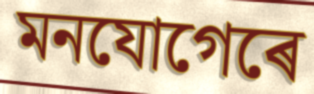
মনযোগেৰে